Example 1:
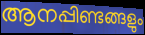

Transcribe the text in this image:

ആനപ്പിണ്ടങ്ങളും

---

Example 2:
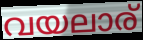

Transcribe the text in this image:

വയലാര്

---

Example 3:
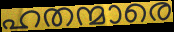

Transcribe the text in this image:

ഹതന്മാരെ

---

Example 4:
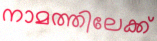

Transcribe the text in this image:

നാമത്തിലേക്ക്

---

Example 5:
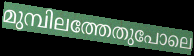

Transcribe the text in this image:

മുമ്പിലത്തേതുപോലെ